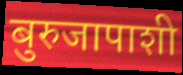
बुरुजापाशी